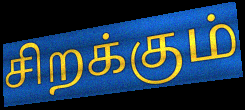
சிறக்கும்